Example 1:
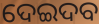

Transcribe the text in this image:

ଦେଇଦବ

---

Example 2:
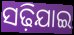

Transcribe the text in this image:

ସଢ଼ିଯାଇ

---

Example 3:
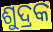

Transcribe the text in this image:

ଶୁଦ୍ରକ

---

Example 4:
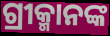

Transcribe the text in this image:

ଗ୍ରୀକ୍ମାନଙ୍କ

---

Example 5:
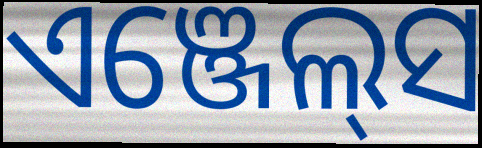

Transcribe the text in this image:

ଏଞ୍ଜେଲ୍‍ସ